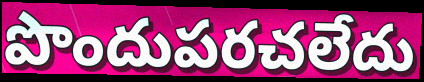
పొందుపరచలేదు